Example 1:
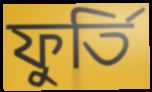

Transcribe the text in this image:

ফুৰ্তি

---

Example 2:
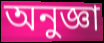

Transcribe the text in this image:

অনুজ্ঞা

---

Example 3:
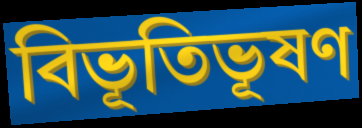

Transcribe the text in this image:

বিভূতিভূষণ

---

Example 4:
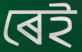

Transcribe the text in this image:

ৰেই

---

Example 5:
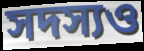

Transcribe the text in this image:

সদস্যও